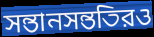
সন্তানসন্ততিরও